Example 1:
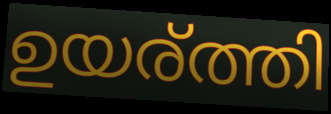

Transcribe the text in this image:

ഉയര്ത്തി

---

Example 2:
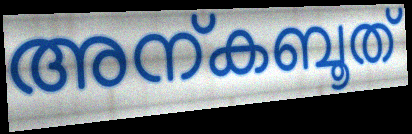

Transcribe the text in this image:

അന്കബൂത്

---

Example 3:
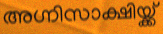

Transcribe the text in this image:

അഗ്നിസാക്ഷിയ്ക്ക്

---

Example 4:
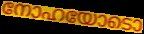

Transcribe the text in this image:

നോഹയോടൊ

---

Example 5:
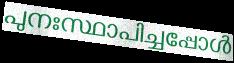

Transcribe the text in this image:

പുനഃസ്ഥാപിച്ചപ്പോൾ